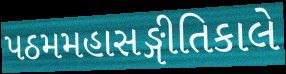
પઠમમહાસઙ્ગીતિકાલે